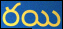
రయి